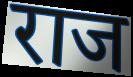
राज